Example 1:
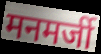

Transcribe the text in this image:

मनमर्जी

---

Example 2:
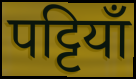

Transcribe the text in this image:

पट्टियाँ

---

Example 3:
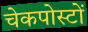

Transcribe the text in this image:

चेकपोस्टों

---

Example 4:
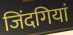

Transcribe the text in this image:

जिंदगियां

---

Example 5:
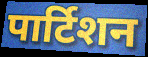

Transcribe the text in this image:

पार्टिशन